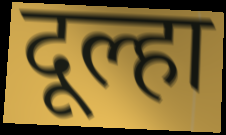
दूल्हा